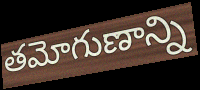
తమోగుణాన్ని